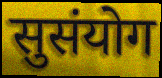
सुसंयोग